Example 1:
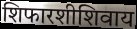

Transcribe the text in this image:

शिफारशीशिवाय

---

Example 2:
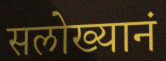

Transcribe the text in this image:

सलोख्यानं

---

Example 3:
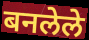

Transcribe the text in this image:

बनलेले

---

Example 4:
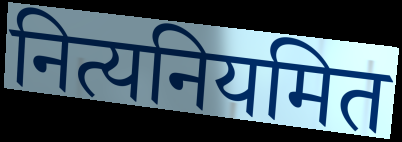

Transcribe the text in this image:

नित्यनियमित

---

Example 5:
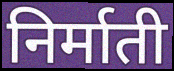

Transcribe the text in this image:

निर्माती